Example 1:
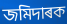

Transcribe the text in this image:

জমিদাৰক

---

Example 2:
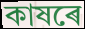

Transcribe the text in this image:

কাষৰে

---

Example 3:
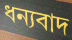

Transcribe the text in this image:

ধন্যবাদ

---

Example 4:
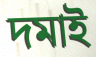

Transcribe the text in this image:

দমাই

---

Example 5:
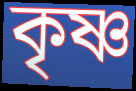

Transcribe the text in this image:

কৃষ্ণ